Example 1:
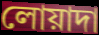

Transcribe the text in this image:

লোয়াদা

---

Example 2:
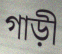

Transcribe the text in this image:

গাড়ী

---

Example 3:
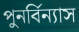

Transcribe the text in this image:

পুনর্বিন্যাস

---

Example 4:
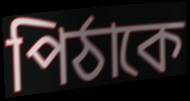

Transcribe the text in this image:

পিঠাকে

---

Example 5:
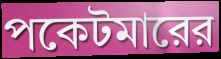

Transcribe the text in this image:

পকেটমারের